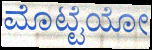
ಮೊಟ್ಟೆಯೋ